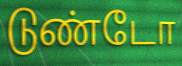
டுண்டோ